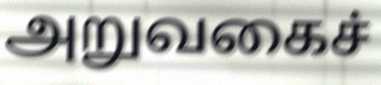
அறுவகைச்